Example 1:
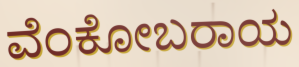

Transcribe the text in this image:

ವೆಂಕೋಬರಾಯ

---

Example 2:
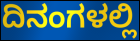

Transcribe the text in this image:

ದಿನಂಗಳಲ್ಲಿ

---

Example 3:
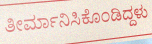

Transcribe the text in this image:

ತೀರ್ಮಾನಿಸಿಕೊಂಡಿದ್ದಳು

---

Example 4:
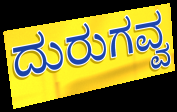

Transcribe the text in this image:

ದುರುಗವ್ವ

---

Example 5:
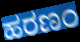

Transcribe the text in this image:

ಹರಣಂ